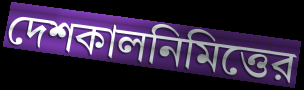
দেশকালনিমিত্তের